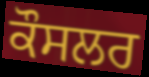
ਕੌਸਲਰ